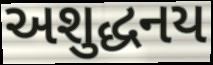
અશુદ્ધનય